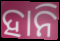
ହାନି